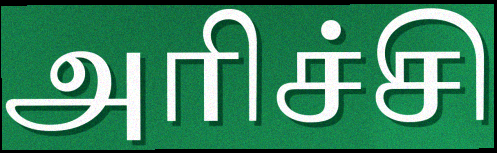
அரிச்சி